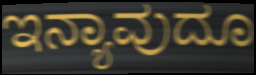
ಇನ್ಯಾವುದೂ